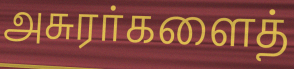
அசுரர்களைத்